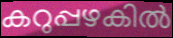
കറുപ്പഴകിൽ